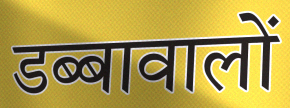
डब्बावालों